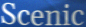
Scenic